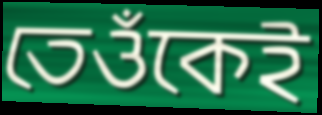
তেওঁকেই